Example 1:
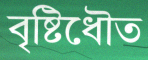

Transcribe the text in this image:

বৃষ্টিধৌত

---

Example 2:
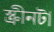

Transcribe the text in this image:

স্ক্রীনটা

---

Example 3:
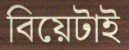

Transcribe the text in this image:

বিয়েটাই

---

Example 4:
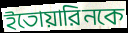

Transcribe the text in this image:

ইতোয়ারিনকে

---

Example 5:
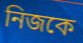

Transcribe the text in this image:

নিজকে